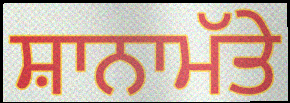
ਸ਼ਾਨਾਮੱਤੇ